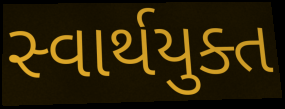
સ્વાર્થયુક્ત